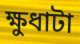
ক্ষুধাটা